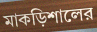
মাকড়িশালের